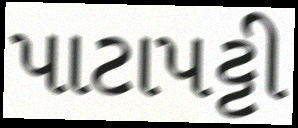
પાટાપટ્ટી